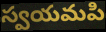
స్వయమపి